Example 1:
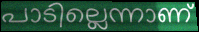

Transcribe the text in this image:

പാടില്ലെന്നാണ്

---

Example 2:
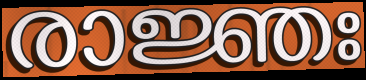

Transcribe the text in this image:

രാജ്ഞഃ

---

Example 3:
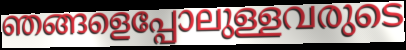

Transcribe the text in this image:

ഞങ്ങളെപ്പോലുള്ളവരുടെ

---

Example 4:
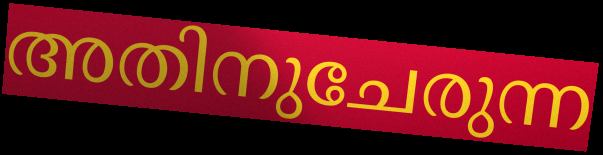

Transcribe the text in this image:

അതിനുചേരുന്ന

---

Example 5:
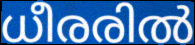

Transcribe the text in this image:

ധീരരിൽ